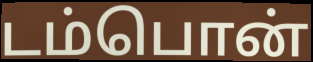
டம்பொன்